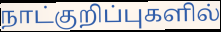
நாட்குறிப்புகளில்